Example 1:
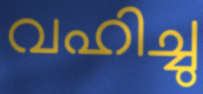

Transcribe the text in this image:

വഹിച്ചു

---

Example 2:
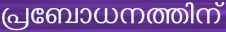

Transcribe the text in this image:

പ്രബോധനത്തിന്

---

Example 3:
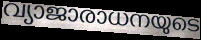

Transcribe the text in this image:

വ്യാജാരാധനയുടെ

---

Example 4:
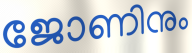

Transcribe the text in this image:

ജോണിനും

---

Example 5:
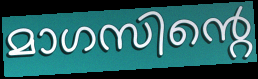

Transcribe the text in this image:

മാഗസിന്റെ